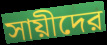
সায়ীদের